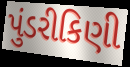
પુંડરીકિણી